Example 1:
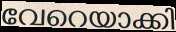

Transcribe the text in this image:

വേറെയാക്കി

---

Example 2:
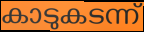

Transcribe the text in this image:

കാടുകടന്ന്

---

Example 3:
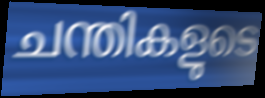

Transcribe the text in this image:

ചന്തികളുടെ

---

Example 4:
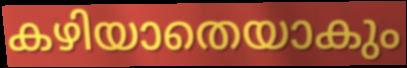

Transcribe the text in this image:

കഴിയാതെയാകും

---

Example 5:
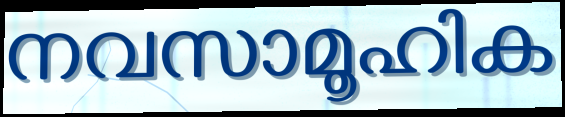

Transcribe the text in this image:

നവസാമൂഹിക